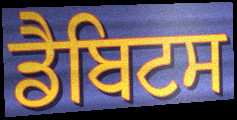
ਡੈਬਿਟਸ